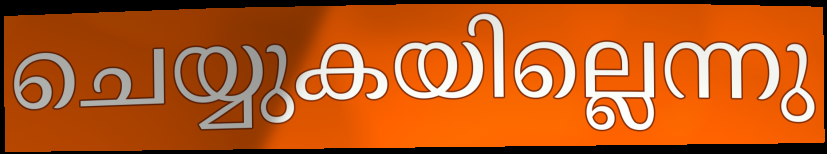
ചെയ്യുകയില്ലെന്നു